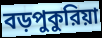
বড়পুকুরিয়া